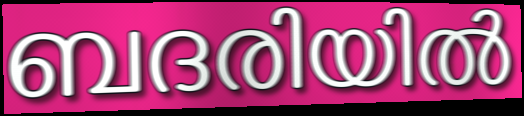
ബദരിയിൽ